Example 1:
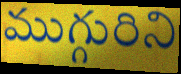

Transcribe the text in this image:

ముగ్గురిని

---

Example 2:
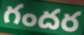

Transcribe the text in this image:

గందర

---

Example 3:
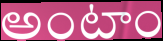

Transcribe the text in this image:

అంటాం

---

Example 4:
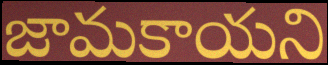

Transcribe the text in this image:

జామకాయని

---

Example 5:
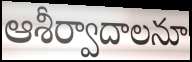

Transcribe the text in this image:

ఆశీర్వాదాలనూ